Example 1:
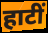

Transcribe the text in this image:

हाटीं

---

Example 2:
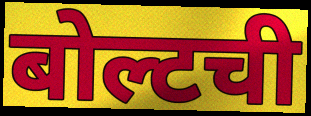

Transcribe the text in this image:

बोल्टची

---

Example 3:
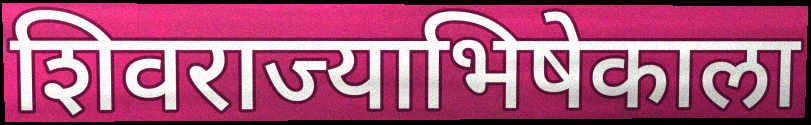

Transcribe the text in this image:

शिवराज्याभिषेकाला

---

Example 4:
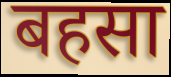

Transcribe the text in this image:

बहसा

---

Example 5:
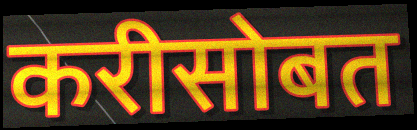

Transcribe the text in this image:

करीसोबत